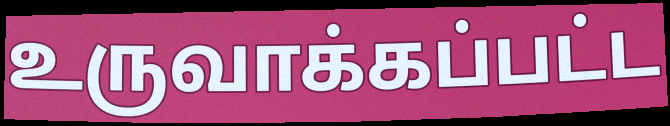
உருவாக்கப்பட்ட